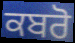
ਕਬਰੋ